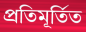
প্ৰতিমূৰ্তিত